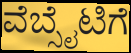
ವೆಬ್ಸೈಟಿಗೆ